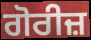
ਗੋਰੀਜ਼